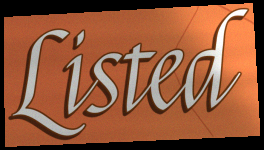
Listed